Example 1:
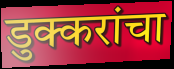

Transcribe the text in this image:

डुक्करांचा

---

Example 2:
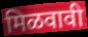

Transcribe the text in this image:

मिळवावी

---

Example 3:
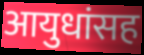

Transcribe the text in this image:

आयुधांसह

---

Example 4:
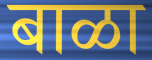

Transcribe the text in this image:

बाळा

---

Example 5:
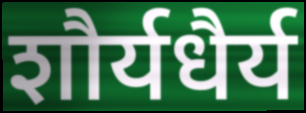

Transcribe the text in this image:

शौर्यधैर्य